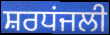
ਸ਼ਰਧਂਜਲੀ